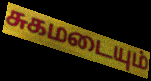
சுகமடையும்